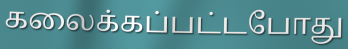
கலைக்கப்பட்டபோது